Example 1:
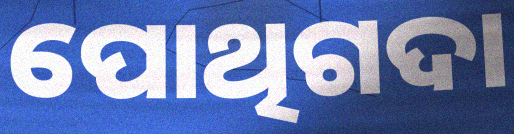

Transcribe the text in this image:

ପୋଥିଗଦା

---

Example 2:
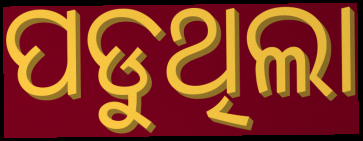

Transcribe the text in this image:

ପଡୁଥିଲା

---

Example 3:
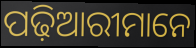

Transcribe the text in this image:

ପଢ଼ିଆରୀମାନେ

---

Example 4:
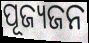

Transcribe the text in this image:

ପୂଜ୍ୟଜନ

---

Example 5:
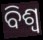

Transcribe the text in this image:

ବିଶ୍ୱ